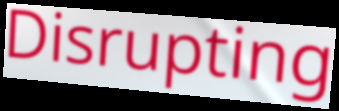
Disrupting